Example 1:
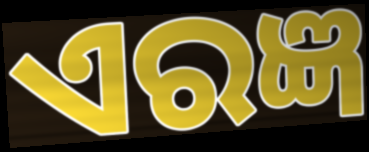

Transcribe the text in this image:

ଏରଜ୍ଞ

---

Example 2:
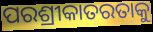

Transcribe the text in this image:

ପରଶ୍ରୀକାତରତାକୁ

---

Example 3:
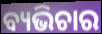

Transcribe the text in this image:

ବ୍ୟଭିଚାର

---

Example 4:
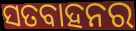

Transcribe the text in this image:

ସତବାହନର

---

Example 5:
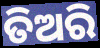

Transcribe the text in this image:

ତିଅରି